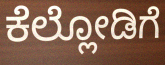
ಕೆಲ್ಲೋಡಿಗೆ